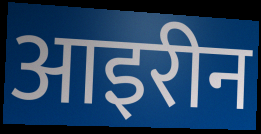
आइरीन